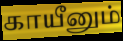
காயீனும்